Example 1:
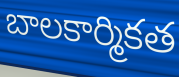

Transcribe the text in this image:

బాలకార్మికత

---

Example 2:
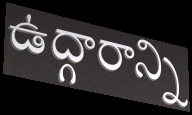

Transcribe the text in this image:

ఉద్గారాన్ని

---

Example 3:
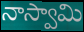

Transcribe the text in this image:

నాస్వామి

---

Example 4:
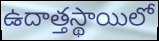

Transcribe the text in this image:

ఉదాత్తస్థాయిలో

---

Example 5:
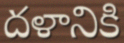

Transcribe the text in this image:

దళానికి